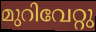
മുറിവേറ്റു